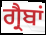
ਗ੍ਰੈਬਾਂ